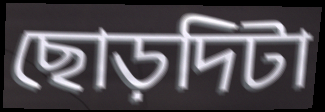
ছোড়দিটা